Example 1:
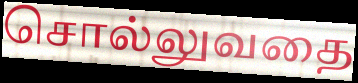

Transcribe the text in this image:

சொல்லுவதை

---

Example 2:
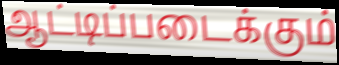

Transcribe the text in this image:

ஆட்டிப்படைக்கும்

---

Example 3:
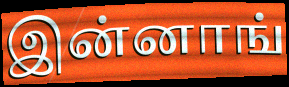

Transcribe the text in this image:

இன்னாங்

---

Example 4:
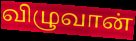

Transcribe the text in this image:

விழுவான்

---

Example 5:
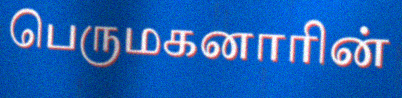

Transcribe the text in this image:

பெருமகனாரின்